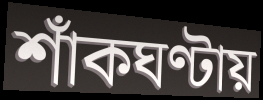
শাঁকঘণ্টায়